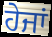
ਹੇਜਾਂ